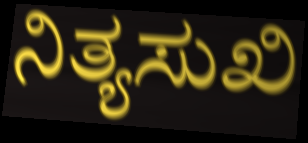
ನಿತ್ಯಸುಖಿ